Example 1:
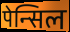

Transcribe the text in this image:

पेन्सिल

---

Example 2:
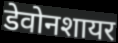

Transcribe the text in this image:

डेवोनशायर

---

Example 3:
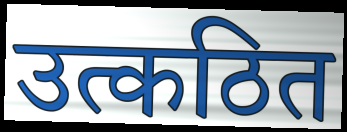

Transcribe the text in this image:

उत्कठित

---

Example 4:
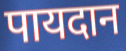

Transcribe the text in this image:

पायदान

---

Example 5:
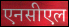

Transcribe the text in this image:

एनसीएल